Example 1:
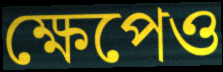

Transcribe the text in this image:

ক্ষেপেও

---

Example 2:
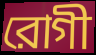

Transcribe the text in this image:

রোগী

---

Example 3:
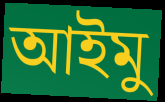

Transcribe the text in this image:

আইমু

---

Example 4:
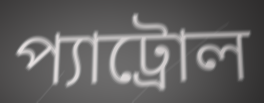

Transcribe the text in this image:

প্যাট্রোল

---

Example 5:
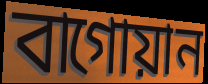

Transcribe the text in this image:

বাগোয়ান